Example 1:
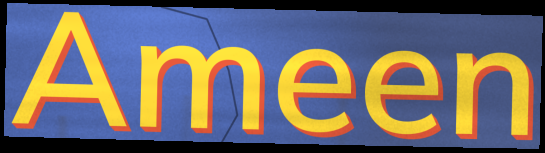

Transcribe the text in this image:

Ameen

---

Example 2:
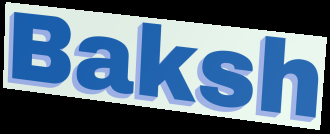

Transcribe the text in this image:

Baksh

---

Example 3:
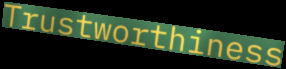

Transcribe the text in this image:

Trustworthiness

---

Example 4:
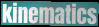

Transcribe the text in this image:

kinematics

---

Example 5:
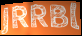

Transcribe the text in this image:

JRRBl